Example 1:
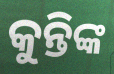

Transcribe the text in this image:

କୁନ୍ତିଙ୍କ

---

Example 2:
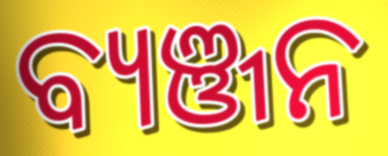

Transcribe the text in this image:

ବ୍ୟଞ୍ଜନ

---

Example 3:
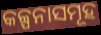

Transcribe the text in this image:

କଳ୍ପନାସମୂହ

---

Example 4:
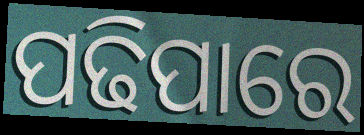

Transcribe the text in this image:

ପଢିପାରେ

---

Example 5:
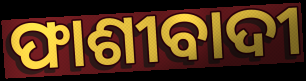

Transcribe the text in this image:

ଫାଶୀବାଦୀ